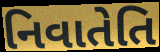
નિવાતેતિ